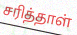
சரித்தாள்